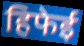
हिफेई